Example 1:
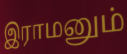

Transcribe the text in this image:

இராமனும்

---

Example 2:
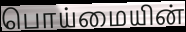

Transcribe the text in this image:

பொய்மையின்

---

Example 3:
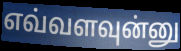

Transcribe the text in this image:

எவ்வளவுன்னு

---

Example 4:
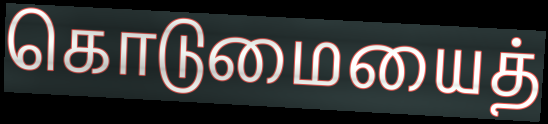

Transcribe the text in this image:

கொடுமையைத்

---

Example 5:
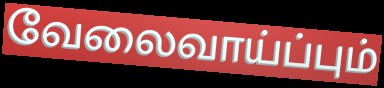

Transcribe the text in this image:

வேலைவாய்ப்பும்